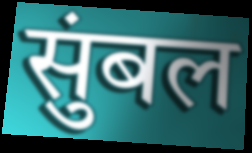
सुंबल